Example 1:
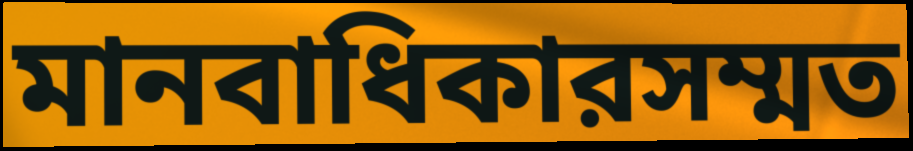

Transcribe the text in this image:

মানবাধিকারসম্মত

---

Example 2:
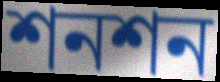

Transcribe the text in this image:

শনশন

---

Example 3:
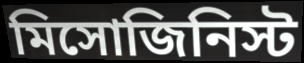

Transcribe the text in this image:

মিসোজিনিস্ট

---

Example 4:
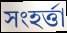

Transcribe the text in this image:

সংহর্ত্তা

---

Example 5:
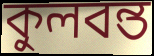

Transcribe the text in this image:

কুলবন্ত